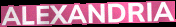
ALEXANDRIA